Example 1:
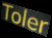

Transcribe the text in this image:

Toler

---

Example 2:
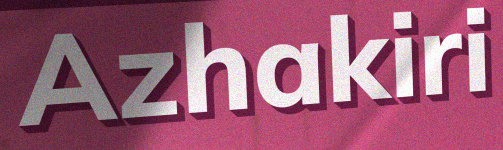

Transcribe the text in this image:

Azhakiri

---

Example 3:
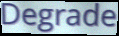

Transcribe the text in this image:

Degrade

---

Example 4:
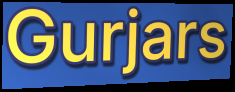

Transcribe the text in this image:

Gurjars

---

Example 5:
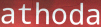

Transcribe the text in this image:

athoda